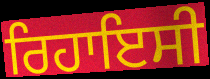
ਰਿਹਾਇਸੀ